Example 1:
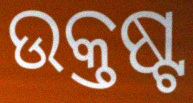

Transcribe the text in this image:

ଉକ୍ତଷ୍ଟ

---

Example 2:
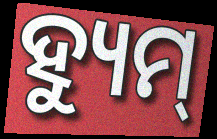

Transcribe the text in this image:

ହ୍ୟୁମ୍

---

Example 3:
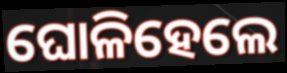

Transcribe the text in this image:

ଘୋଳିହେଲେ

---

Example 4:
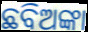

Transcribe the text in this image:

ଛବିଅଙ୍କା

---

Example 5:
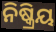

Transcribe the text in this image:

ନିଷ୍କ୍ରିୟ